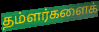
தம்ளர்களைக்